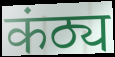
कंठ्य